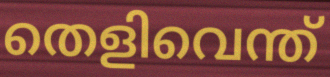
തെളിവെന്ത്